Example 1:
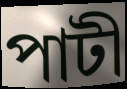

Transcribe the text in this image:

পাটী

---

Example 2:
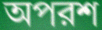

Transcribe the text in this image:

অপরশ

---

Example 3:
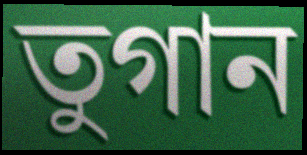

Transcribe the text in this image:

তুগান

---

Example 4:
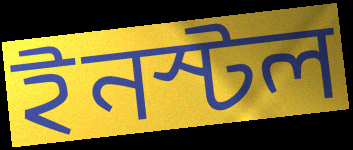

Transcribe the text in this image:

ইনস্টল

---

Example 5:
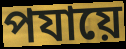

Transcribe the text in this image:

পযায়ে